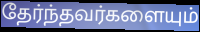
தேர்ந்தவர்களையும்